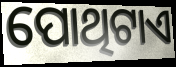
ପୋଥିଟାଏ